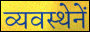
व्यवस्थेनें